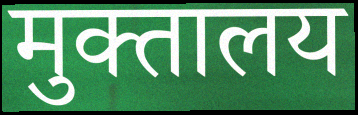
मुक्तालय